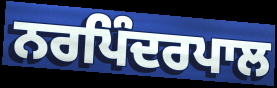
ਨਰਪਿੰਦਰਪਾਲ